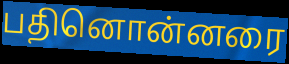
பதினொன்னரை